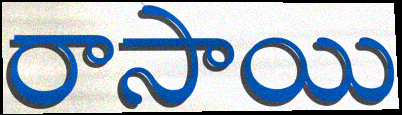
రాసాయి